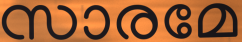
സാരമേ